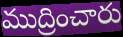
ముద్రించారు